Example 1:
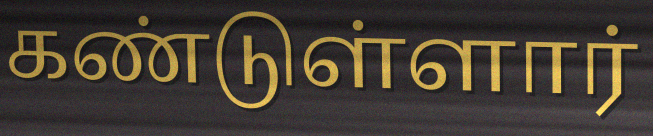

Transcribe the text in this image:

கண்டுள்ளார்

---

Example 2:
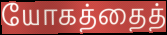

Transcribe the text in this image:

யோகத்தைத்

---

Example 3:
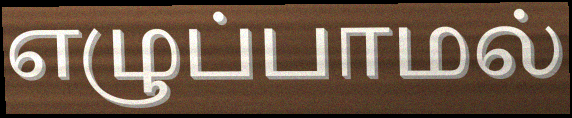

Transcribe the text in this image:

எழுப்பாமல்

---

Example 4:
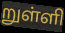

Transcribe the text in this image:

றுள்ளி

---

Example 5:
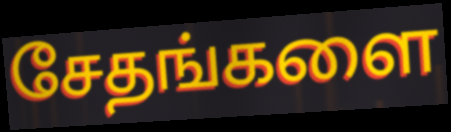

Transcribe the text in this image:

சேதங்களை